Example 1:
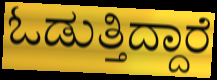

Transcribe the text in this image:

ಓಡುತ್ತಿದ್ದಾರೆ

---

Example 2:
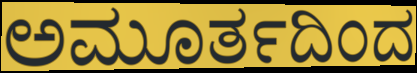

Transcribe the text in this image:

ಅಮೂರ್ತದಿಂದ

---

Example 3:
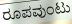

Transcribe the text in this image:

ರೂಪವುಂಟು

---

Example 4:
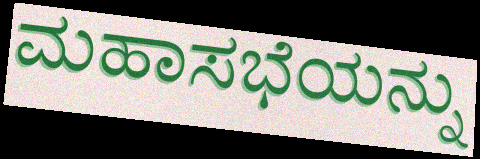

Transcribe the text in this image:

ಮಹಾಸಭೆಯನ್ನು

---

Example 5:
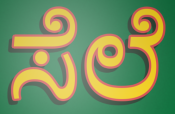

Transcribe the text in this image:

ಸೆಲೆ